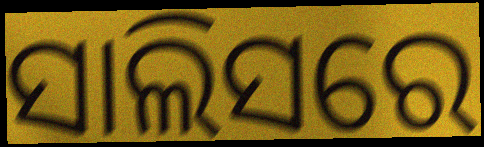
ସାଲିସରେ